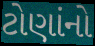
ટોણાંનો